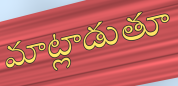
మాట్లాడుతూ